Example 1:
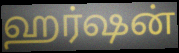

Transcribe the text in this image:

ஹர்ஷன்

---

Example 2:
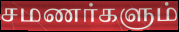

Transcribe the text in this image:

சமணர்களும்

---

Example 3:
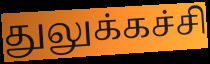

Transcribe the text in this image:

துலுக்கச்சி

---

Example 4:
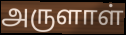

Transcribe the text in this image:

அருளாள்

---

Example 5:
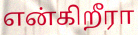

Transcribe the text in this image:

என்கிறீரா